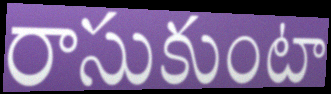
రాసుకుంటా